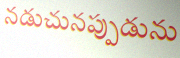
నడుచునప్పుడును